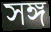
সঙ্গ